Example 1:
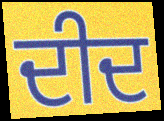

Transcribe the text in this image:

ਦੀਦ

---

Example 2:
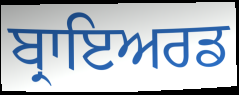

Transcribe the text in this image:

ਬ੍ਰਾਇਅਰਡ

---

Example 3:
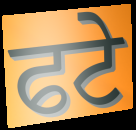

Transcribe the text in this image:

ਫਟੇ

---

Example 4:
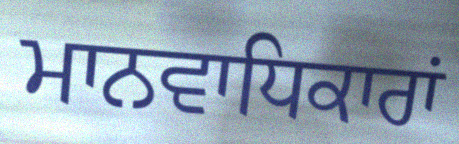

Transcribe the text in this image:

ਮਾਨਵਾਧਿਕਾਰਾਂ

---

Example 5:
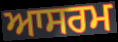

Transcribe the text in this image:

ਆਸਰਮ